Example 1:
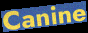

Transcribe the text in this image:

Canine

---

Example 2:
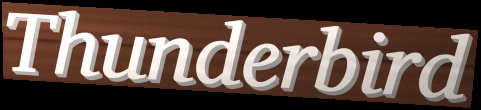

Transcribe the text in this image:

Thunderbird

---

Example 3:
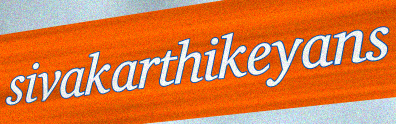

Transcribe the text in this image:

sivakarthikeyans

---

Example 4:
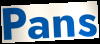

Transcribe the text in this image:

Pans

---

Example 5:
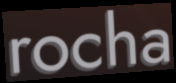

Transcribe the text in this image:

rocha